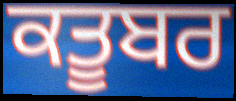
ਕਤੂਬਰ